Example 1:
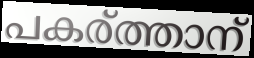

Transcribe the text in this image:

പകര്ത്താന്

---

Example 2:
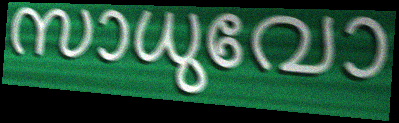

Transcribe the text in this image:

സാധുവോ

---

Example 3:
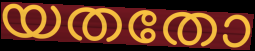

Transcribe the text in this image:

യതതോ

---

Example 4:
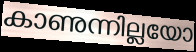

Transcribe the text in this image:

കാണുന്നില്ലയോ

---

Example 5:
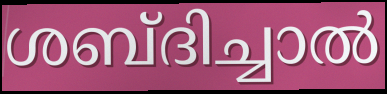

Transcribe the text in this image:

ശബ്ദിച്ചാൽ